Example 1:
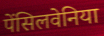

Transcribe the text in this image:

पेंसिलवेनिया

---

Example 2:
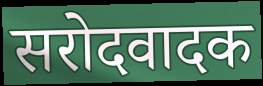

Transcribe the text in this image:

सरोदवादक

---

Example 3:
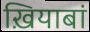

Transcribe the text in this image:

ख़ियाबां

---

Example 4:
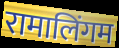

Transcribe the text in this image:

रामालिंगम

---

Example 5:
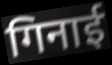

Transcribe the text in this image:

गिनाई